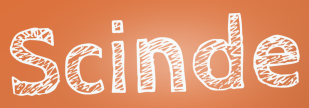
Scinde